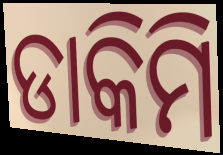
ଡାକିମି